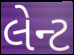
લેન્ટ